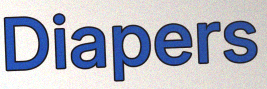
Diapers